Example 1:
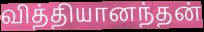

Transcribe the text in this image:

வித்தியானந்தன்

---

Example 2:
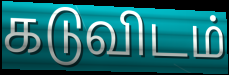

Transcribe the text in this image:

கடுவிடம்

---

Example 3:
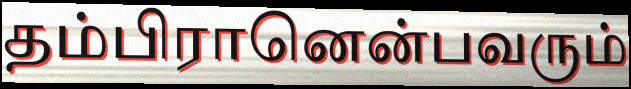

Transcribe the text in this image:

தம்பிரானென்பவரும்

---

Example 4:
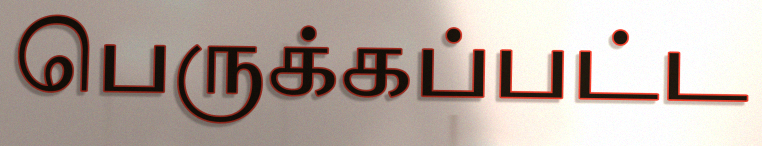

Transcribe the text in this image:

பெருக்கப்பட்ட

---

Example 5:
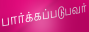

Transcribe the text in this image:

பார்க்கப்படுபவர்